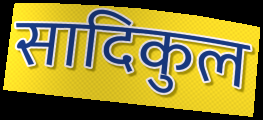
सादिकुल